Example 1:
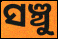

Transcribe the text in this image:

ସଞ୍ଚୁ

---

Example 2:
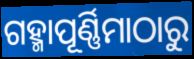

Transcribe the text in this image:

ଗହ୍ମାପୂର୍ଣ୍ଣିମାଠାରୁ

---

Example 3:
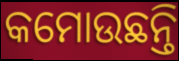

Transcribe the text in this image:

କମୋଉଛନ୍ତି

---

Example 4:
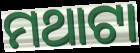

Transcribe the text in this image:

ମଥାଟା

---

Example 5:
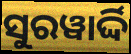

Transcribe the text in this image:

ସୁରୱାର୍ଦ୍ଦି